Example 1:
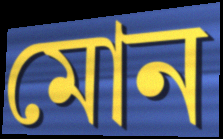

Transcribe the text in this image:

মোন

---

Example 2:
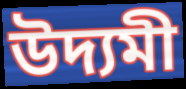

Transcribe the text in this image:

উদ্যমী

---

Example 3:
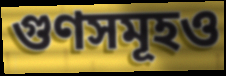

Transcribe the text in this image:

গুণসমূহও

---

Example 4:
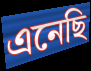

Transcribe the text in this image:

এনেছি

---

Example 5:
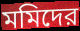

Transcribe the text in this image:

মমিদের